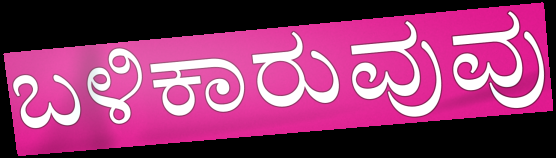
ಬಳಿಕಾರುವುವು